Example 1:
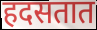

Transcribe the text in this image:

हदसतात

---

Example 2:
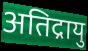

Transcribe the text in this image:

अतिद्रायु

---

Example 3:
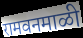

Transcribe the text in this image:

रामवनमाळी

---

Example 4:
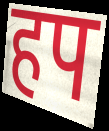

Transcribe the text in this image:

हप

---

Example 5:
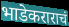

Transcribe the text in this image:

भाडेकराराचं